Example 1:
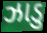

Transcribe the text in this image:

ઝાડુ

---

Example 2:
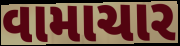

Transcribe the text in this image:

વામાચાર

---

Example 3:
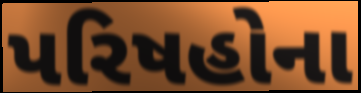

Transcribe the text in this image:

પરિષહોના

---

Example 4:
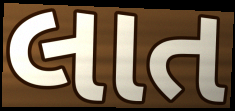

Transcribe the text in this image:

લાત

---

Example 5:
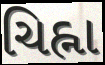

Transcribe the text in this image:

ચિહ્ના